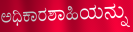
ಅಧಿಕಾರಶಾಹಿಯನ್ನು